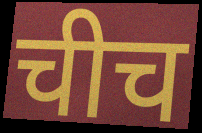
चीच